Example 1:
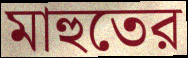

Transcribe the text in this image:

মাহুতের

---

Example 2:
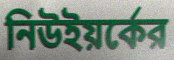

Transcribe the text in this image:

নিউইয়র্কের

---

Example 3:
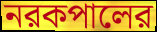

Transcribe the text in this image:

নরকপালের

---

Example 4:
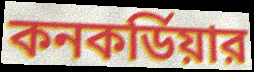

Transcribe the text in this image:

কনকর্ডিয়ার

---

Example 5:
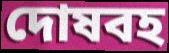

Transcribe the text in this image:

দোষবহ